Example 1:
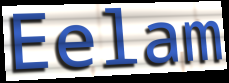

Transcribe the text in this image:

Eelam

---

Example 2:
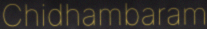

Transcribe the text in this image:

Chidhambaram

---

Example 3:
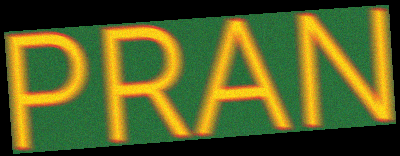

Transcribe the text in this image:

PRAN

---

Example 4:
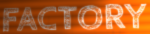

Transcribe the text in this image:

FACTORY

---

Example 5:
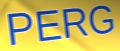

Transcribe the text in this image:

PERG